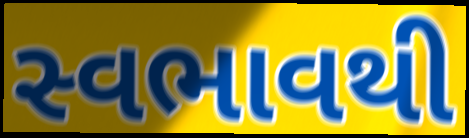
સ્વભાવથી